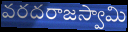
వరదరాజస్వామి